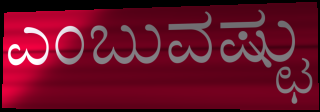
ಎಂಬುವಷ್ಟು